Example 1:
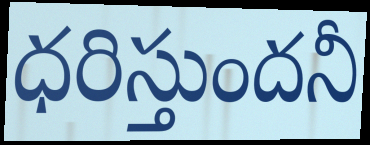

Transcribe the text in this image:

ధరిస్తుందనీ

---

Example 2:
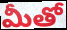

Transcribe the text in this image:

మీతో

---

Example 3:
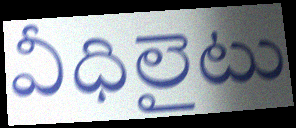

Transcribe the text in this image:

వీధిలైటు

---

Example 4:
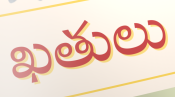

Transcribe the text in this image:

ఖతులు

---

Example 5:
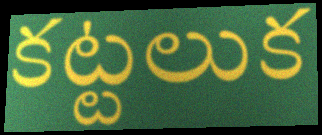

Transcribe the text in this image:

కట్టలుక